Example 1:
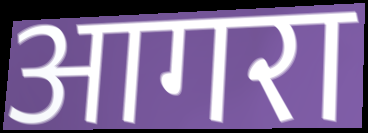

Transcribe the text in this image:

आगरा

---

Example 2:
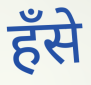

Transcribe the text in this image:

हँसे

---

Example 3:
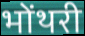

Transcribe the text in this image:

भोंथरी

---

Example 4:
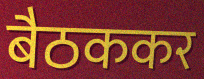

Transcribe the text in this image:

बैठककर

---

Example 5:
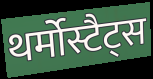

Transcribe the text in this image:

थर्मोस्टैट्स